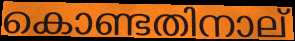
കൊണ്ടതിനാല്